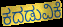
ಕದಡುವಿಕೆ